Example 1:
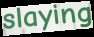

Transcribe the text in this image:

slaying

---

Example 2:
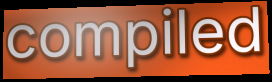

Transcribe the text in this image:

compiled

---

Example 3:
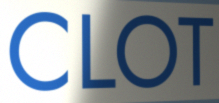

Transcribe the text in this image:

CLOT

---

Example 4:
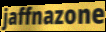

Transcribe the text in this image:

jaffnazone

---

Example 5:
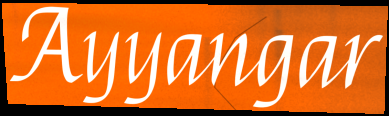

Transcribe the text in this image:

Ayyangar